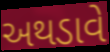
અથડાવે